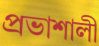
প্রভাশালী